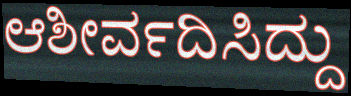
ಆಶೀರ್ವದಿಸಿದ್ದು